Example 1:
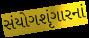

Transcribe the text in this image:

સંયોગશૃંગારનાં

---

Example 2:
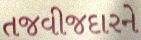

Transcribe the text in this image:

તજવીજદારને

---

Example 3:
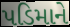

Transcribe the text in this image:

પડિમાને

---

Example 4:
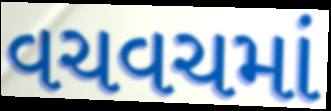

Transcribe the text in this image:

વચવચમાં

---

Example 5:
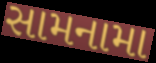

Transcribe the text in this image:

સામનામા